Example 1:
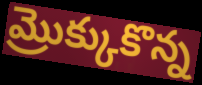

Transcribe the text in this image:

మ్రొక్కుకొన్న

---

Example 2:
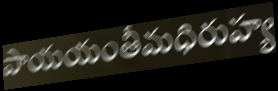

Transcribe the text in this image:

పాయయంతీమధిరుహ్య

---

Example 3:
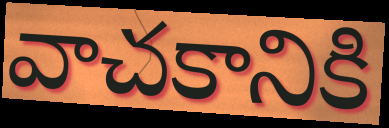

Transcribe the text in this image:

వాచకానికి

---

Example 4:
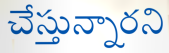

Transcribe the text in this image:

చేస్తున్నారని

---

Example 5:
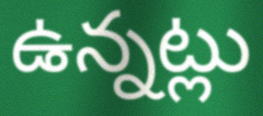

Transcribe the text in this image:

ఉన్నట్లు